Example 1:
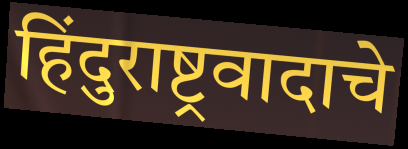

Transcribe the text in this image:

हिंदुराष्ट्रवादाचे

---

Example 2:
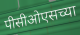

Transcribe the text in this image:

पीसीओएसच्या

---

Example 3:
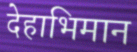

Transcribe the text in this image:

देहाभिमान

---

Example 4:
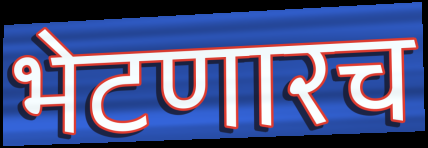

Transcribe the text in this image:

भेटणारच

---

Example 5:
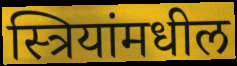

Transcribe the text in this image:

स्त्रियांमधील